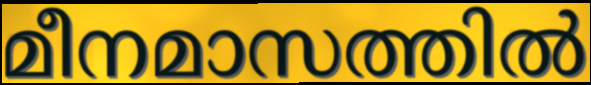
മീനമാസത്തിൽ